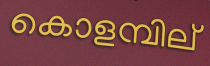
കൊളമ്പില്